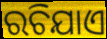
ରଚିଯାଏ